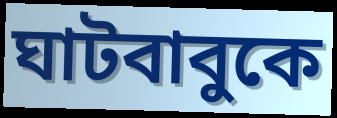
ঘাটবাবুকে